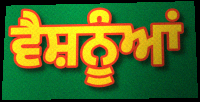
ਵੈਸ਼ਨੂੰਆਂ